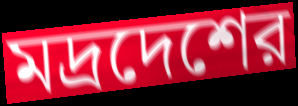
মদ্রদেশের